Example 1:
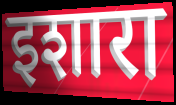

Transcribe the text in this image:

इशारा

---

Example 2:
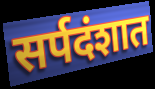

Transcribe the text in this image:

सर्पदंशात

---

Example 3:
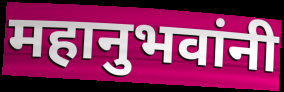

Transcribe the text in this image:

महानुभवांनी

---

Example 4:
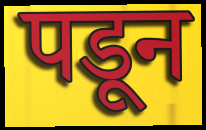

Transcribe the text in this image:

पडून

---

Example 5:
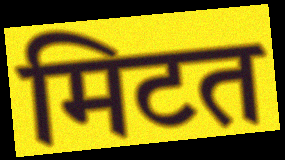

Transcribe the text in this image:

मिटत